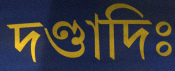
দণ্ডাদিঃ